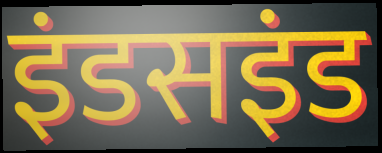
इंडसइंड